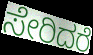
ಸೇರಿದರೆ